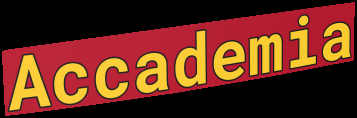
Accademia